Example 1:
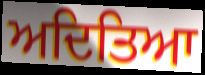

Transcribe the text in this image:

ਅਦਿਤਿਆ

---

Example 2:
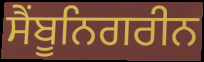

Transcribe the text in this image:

ਸੈਂਬੂਨਿਗਰੀਨ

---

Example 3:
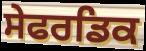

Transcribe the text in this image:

ਸੇਫਰਡਿਕ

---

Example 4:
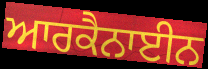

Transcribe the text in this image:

ਆਰਕੈਨਾਈਨ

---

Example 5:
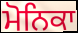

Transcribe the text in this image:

ਮੋਨਿਕਾ